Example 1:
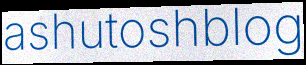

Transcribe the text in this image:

ashutoshblog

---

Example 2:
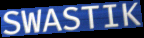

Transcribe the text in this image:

SWASTIK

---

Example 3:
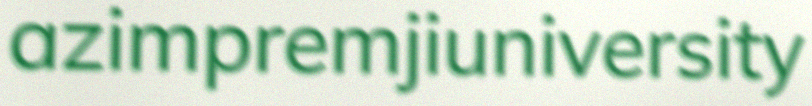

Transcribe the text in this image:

azimpremjiuniversity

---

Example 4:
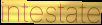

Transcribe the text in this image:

intestate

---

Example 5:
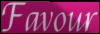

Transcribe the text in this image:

Favour